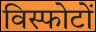
विस्फोटों